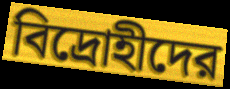
বিদ্রোহীদের